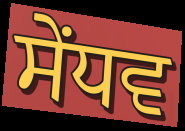
ਸੇਂਧਵ